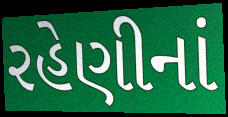
રહેણીનાં